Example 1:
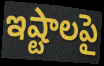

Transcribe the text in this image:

ఇష్టాలపై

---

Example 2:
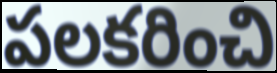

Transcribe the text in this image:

పలకరించి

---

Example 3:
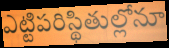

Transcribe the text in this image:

ఎట్టిపరిస్థితుల్లోనూ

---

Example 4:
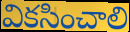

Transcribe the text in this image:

వికసించాలి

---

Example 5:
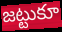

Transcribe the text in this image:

జట్టుకూ